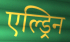
एल्ड्रिन